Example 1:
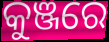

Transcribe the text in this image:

କୁଞ୍ଜରେ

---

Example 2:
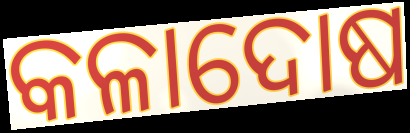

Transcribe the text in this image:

କଳାଦୋଷ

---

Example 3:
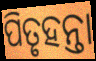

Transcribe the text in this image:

ପିତୃହନ୍ତା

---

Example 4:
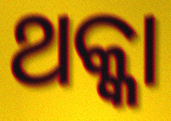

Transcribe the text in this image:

ଥକ୍କା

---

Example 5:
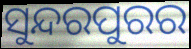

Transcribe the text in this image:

ସୁନ୍ଦରପୁରର